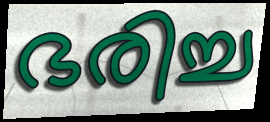
ഭരിച്ച